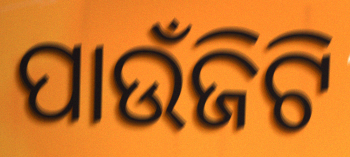
ପାଉଁଜିଟି